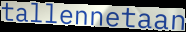
tallennetaan